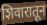
शिवारातून